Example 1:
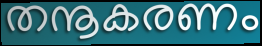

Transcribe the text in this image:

തനൂകരണം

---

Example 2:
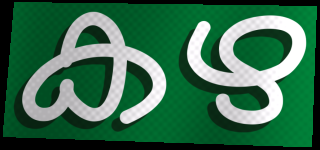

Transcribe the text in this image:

കഴ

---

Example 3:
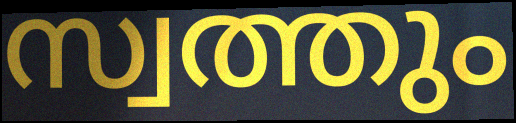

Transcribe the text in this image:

സ്വത്തും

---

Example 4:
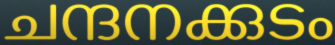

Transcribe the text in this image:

ചന്ദനക്കുടം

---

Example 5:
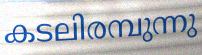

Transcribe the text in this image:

കടലിരമ്പുന്നു